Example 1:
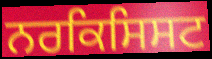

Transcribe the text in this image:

ਨਰਕਿਸਿਸਟ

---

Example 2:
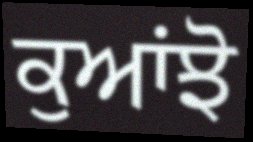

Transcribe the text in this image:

ਕੁਆਂਝੋ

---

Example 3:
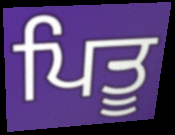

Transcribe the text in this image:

ਪਿਤੂ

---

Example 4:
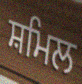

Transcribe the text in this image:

ਸ਼ਮਿਲ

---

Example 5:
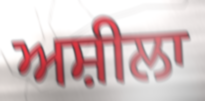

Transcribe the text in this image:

ਅਸ਼ੀਲਾ